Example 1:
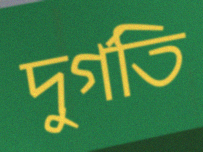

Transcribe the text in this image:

দুর্গতি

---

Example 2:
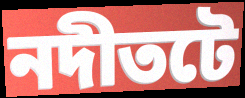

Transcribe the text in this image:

নদীতটে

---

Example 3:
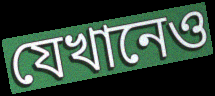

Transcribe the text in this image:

যেখানেও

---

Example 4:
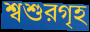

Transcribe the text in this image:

শ্বশুরগৃহ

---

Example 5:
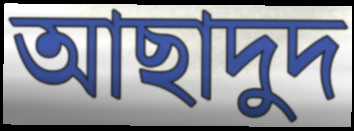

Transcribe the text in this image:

আছাদুদ